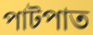
পাটপাত